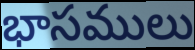
భాసములు